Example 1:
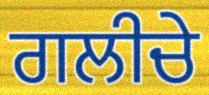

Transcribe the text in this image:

ਗਲੀਚੇ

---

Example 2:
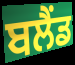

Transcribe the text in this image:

ਬਲੈਂਡ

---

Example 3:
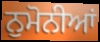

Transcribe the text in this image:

ਨੁਮੋਨੀਆਂ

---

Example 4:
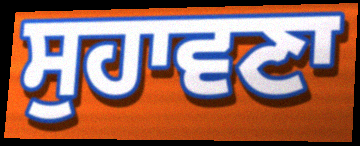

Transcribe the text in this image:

ਸੁਹਾਵਣਾ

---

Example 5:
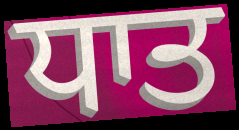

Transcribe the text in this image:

ਧਾਤ